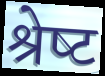
श्रेष्‍ट